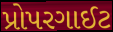
પ્રોપરગાઈટ